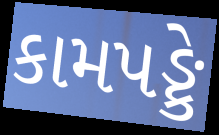
કામપઙ્કે